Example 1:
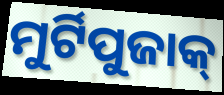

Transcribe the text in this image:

ମୁର୍ଟିପୁଜାକ୍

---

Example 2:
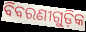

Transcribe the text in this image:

ବିବରଣୀଗୁଡ଼ିକ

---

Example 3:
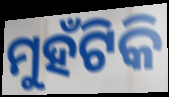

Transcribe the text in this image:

ମୁହଁଟିକି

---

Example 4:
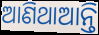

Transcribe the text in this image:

ଆଣିଥାଆନ୍ତି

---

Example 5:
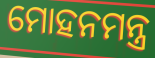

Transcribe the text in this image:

ମୋହନମନ୍ତ୍ର